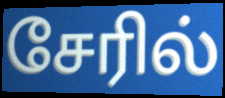
சேரில்